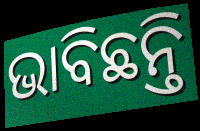
ଭାବିଛନ୍ତି